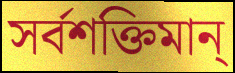
সর্বশক্তিমান্